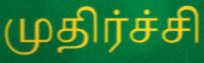
முதிர்ச்சி